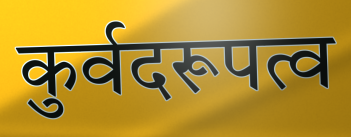
कुर्वदरूपत्व